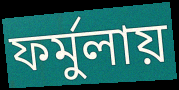
ফর্মুলায়